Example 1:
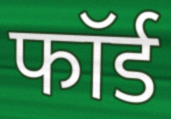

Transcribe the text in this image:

फॉर्ड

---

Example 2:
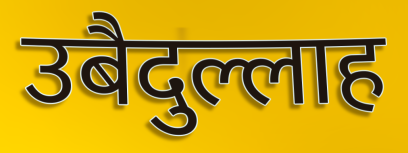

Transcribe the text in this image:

उबैदुल्लाह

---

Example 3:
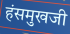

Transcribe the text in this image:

हंसमुखजी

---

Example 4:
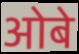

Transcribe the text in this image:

ओबे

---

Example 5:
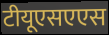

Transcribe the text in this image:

टीयूएसएएस